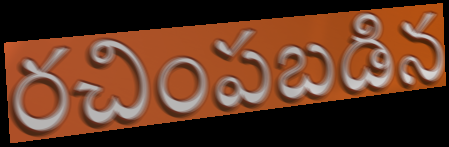
రచింపబడిన